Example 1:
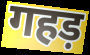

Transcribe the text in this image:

गहड़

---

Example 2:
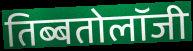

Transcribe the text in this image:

तिब्बतोलॉजी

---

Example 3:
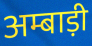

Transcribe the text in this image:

अम्बाड़ी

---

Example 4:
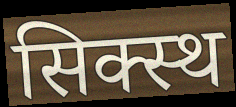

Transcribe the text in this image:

सिक्स्थ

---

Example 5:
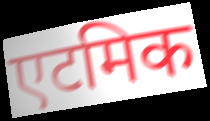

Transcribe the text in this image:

एटमिक